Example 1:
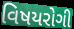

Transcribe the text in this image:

વિષયરોગી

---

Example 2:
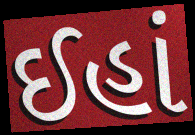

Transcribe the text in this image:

ઈહાં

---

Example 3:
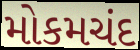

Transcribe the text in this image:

મોકમચંદ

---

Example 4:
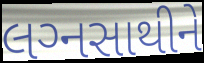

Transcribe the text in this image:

લગ્‍નસાથીને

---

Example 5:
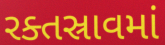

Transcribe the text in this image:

રક્તસ્રાવમાં